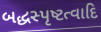
બદ્ધસ્પૃષ્ટત્વાદિ